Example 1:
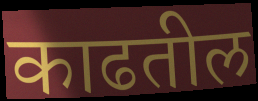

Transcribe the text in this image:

काढतील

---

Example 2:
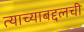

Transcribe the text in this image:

त्याच्याबद्दलची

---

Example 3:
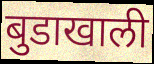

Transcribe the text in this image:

बुडाखाली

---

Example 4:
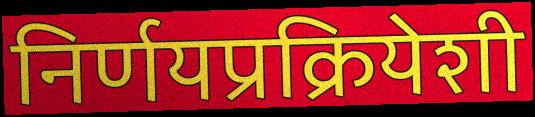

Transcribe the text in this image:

निर्णयप्रक्रियेशी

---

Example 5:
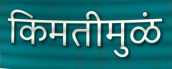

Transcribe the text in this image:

किमतीमुळं